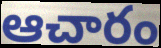
ఆచారం